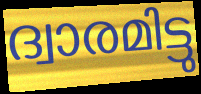
ദ്വാരമിട്ടു